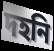
দহনি